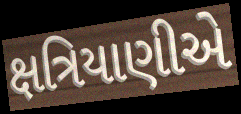
ક્ષત્રિયાણીએ